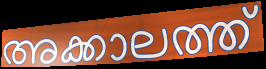
അക്കാലത്ത്